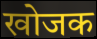
खोजक